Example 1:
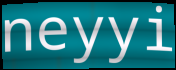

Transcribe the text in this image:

neyyi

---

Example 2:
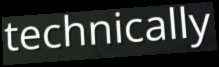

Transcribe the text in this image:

technically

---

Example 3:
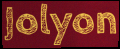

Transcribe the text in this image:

Jolyon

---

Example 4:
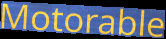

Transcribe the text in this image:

Motorable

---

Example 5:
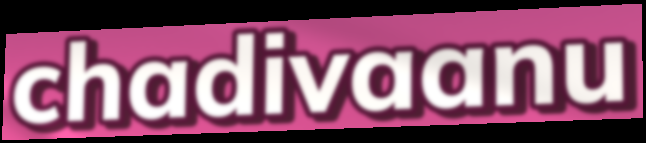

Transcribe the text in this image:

chadivaanu